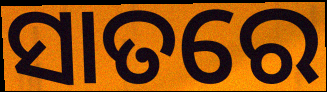
ସାତରେ